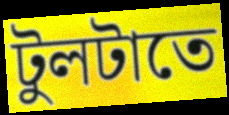
টুলটাতে